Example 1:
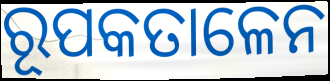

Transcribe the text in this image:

ରୂପକତାଳେନ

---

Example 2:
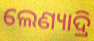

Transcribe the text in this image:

ଲେଣ୍ୟାଦ୍ରି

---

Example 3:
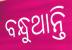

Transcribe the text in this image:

ବନ୍ଧୁଥାନ୍ତି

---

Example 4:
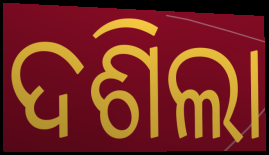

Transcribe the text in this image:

ଦଶିଲା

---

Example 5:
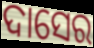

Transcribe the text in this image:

ଦାସେର